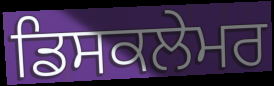
ਡਿਸਕਲੇਮਰ